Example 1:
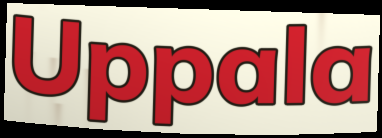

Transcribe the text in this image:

Uppala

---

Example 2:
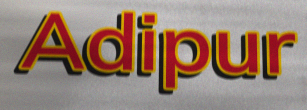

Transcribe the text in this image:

Adipur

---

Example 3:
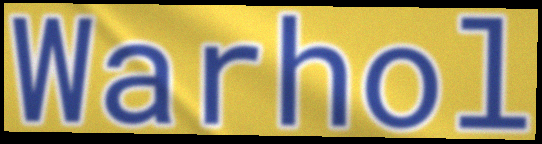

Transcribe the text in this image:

Warhol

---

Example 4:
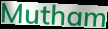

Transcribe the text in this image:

Mutham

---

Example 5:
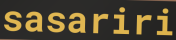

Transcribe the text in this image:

sasariri